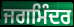
ਜਗਮਿੰਦਰ